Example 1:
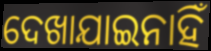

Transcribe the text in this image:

ଦେଖାଯାଇନାହିଁ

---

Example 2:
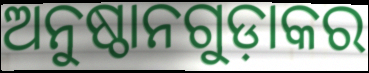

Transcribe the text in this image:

ଅନୁଷ୍ଠାନଗୁଡ଼ାକର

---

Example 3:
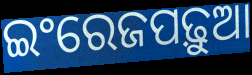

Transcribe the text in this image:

ଇଂରେଜପଢ଼ୁଆ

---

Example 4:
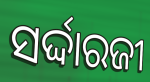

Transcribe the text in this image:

ସର୍ଦ୍ଦାରଜୀ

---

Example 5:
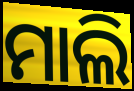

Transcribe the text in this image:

ମାଲି